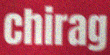
chirag